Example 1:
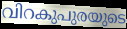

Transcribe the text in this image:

വിറകുപുരയുടെ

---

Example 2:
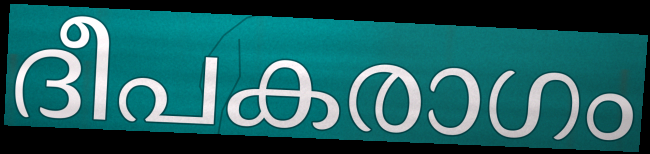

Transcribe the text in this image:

ദീപകരാഗം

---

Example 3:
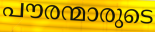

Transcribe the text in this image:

പൗരന്മാരുടെ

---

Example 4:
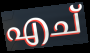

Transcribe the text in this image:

എച്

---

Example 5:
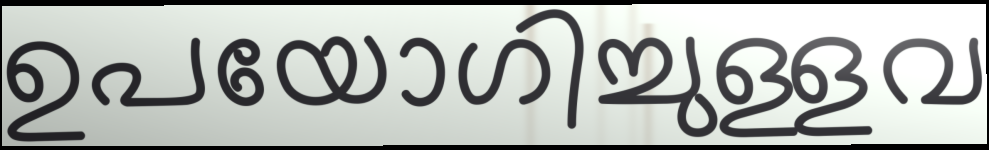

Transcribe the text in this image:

ഉപയോഗിച്ചുള്ളവ